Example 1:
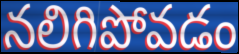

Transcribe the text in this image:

నలిగిపోవడం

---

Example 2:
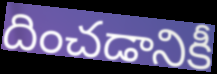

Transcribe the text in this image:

దించడానికీ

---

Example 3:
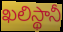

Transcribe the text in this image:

ఖలిస్థానీ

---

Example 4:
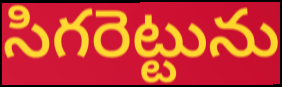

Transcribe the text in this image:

సిగరెట్టును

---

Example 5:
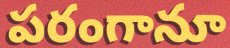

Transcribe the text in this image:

పరంగానూ